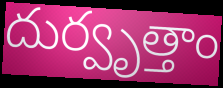
దుర్వృత్తాం